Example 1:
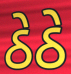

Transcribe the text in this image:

ઠેઠે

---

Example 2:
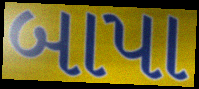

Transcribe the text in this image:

બાપા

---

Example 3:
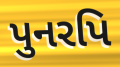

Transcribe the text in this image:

પુનરપિ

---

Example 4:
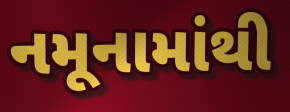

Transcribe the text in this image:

નમૂનામાંથી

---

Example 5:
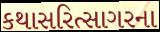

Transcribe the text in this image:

કથાસરિત્સાગરના